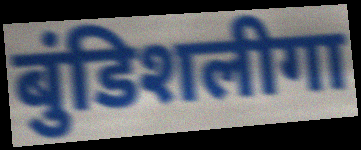
बुंडिशलीगा